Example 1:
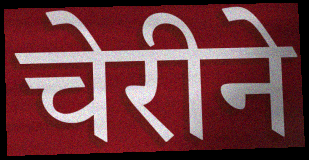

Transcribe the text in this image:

चेरीने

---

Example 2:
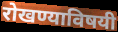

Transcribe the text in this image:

रोखण्याविषयी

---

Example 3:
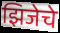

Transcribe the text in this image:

झिजेचे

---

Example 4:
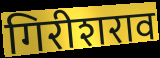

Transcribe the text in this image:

गिरीशराव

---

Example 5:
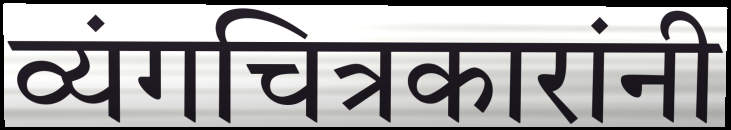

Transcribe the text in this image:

व्यंगचित्रकारांनी